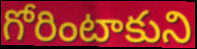
గోరింటాకుని